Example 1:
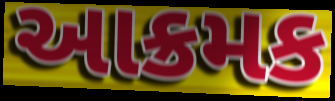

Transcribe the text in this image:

આક્રમક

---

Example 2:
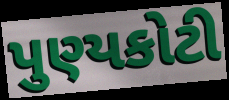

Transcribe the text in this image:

પુણ્યકોટી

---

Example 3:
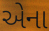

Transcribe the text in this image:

એના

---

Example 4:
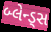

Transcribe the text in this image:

બ્લેન્ડ્સ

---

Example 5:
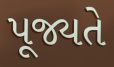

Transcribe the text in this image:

પૂજ્યતે